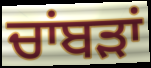
ਚਾਂਬੜਾਂ